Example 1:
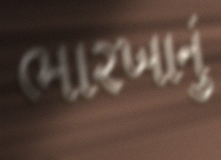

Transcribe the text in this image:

ભારખાનું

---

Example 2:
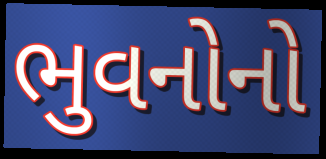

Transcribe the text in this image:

ભુવનોનો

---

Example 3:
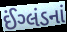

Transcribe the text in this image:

ઈંગ્લંડનાં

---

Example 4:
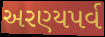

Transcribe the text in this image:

અરણ્યપર્વ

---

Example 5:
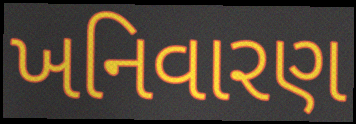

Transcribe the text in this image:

ખનિવારણ